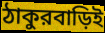
ঠাকুরবাড়িই